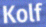
Kolf